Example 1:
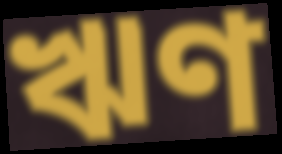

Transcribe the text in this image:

ঋণ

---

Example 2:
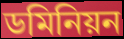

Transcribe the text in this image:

ডমিনিয়ন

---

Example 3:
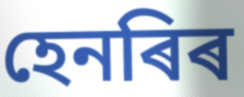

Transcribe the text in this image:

হেনৰিৰ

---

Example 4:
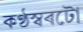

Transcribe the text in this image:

কণ্ঠস্বৰটো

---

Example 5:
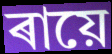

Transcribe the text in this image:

ৰায়ে